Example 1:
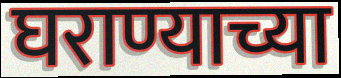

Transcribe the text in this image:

घराण्याच्या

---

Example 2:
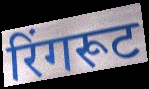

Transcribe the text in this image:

रिंगरूट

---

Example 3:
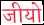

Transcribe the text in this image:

जीयो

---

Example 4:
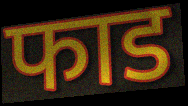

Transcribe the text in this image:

फाड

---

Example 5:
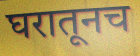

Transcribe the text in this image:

घरातूनच